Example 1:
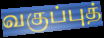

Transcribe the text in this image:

வகுப்புத்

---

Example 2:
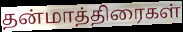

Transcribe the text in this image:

தன்மாத்திரைகள்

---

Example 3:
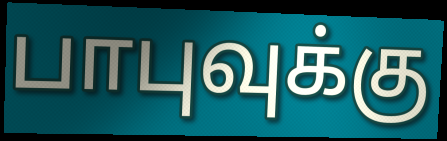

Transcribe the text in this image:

பாபுவுக்கு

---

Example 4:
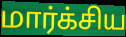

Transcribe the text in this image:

மார்க்சிய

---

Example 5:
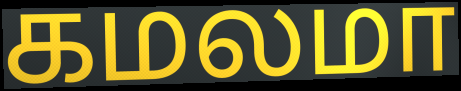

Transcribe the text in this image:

கமலமா